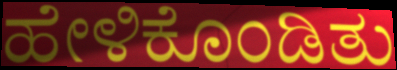
ಹೇಳಿಕೊಂಡಿತು